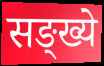
सङ्ख्ये